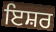
ਇਸ਼ਰ